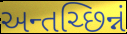
અન્તચ્છિન્નં